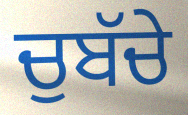
ਚੁਬੱਚੇ